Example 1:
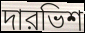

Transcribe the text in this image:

দারভিশ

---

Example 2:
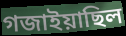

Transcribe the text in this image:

গজাইয়াছিল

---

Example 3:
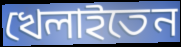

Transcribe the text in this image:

খেলাইতেন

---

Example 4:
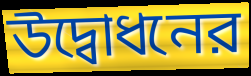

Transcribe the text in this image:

উদ্বোধনের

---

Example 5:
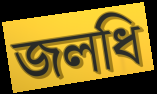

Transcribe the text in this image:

জলধি